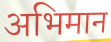
अभिमान